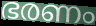
ഭരണം